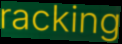
racking